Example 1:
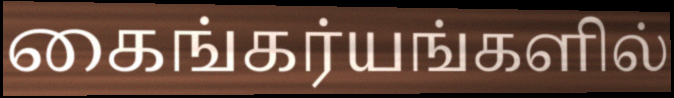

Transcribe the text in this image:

கைங்கர்யங்களில்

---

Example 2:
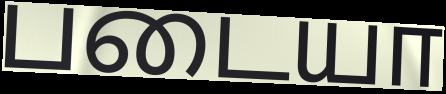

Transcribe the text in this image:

படையா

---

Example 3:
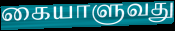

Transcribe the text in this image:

கையாளுவது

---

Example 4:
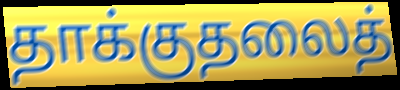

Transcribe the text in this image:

தாக்குதலைத்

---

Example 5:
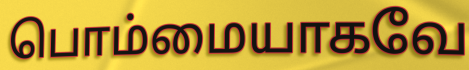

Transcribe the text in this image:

பொம்மையாகவே